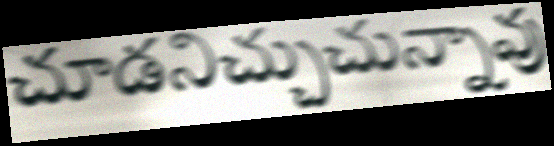
చూడనిచ్చుచున్నావు